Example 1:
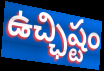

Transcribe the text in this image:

ఉచ్ఛిష్టం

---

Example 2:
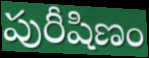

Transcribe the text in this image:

పురీషిణం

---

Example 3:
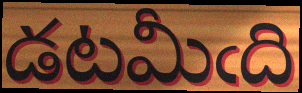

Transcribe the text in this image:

డటమీఁది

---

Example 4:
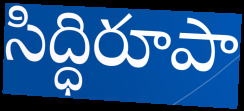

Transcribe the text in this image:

సిద్ధిరూపా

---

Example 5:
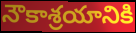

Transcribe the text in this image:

నౌకాశ్రయానికి